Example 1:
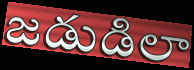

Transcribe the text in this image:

జడుడిలా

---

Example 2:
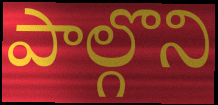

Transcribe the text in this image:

పాల్గొని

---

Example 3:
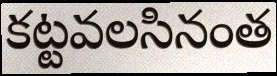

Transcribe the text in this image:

కట్టవలసినంత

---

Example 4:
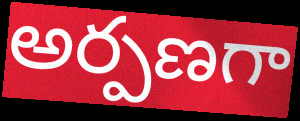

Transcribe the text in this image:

అర్పణగా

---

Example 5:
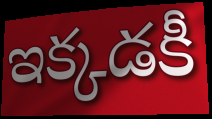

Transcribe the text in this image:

ఇక్కడకీ